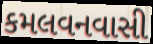
કમલવનવાસી